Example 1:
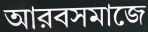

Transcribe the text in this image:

আরবসমাজে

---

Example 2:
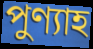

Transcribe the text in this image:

পুণ্যাহ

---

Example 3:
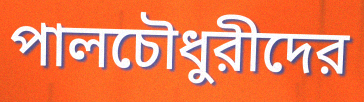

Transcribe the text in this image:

পালচৌধুরীদের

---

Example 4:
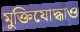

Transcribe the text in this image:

মুক্তিযোদ্ধাও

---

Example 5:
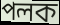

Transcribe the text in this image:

পলক